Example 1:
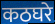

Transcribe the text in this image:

कठघरे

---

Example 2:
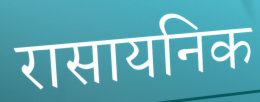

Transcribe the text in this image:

रासायनिक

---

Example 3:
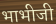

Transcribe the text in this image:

भाभीजी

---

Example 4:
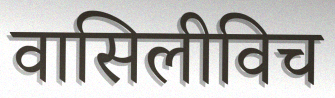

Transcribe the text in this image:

वासिलीविच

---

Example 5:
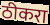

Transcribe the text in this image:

ठीकरा